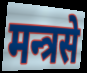
मन्त्रसे